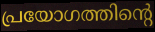
പ്രയോഗത്തിന്റെ